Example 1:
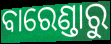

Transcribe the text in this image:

ବାରେଣ୍ଡାରୁ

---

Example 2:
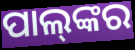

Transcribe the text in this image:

ପାଲ୍‍ଙ୍କର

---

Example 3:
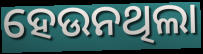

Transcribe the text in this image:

ହେଉନଥିଲା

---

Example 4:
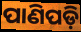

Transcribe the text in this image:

ପାଣିପଡ଼ି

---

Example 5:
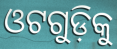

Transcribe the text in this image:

ଓଟଗୁଡ଼ିକୁ